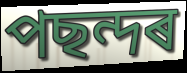
পছন্দৰ